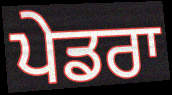
ਪੇਡਰਾ